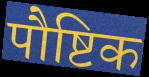
पौष्टिक